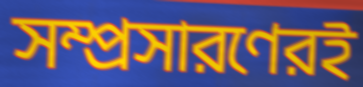
সম্প্রসারণেরই